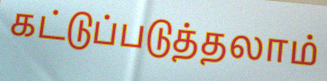
கட்டுப்படுத்தலாம்